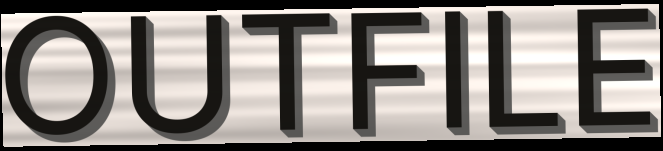
OUTFILE